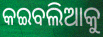
କଇବଲିଆକୁ